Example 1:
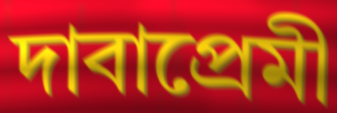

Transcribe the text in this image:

দাবাপ্রেমী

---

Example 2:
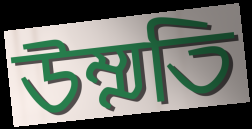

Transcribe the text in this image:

উম্মতি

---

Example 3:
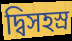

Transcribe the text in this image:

দ্বিসহস্র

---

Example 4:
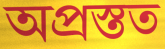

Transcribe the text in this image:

অপ্রস্তত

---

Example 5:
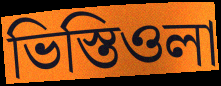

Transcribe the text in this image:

ভিস্তিওলা